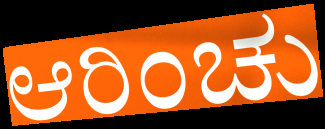
ಆರಿಂಚು